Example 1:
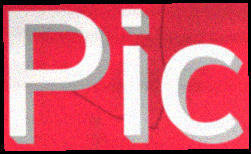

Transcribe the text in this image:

Pic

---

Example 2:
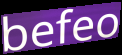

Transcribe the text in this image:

befeo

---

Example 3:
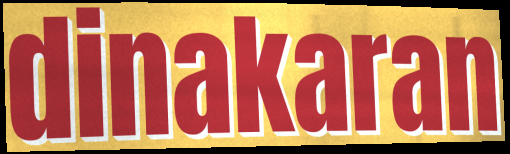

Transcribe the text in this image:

dinakaran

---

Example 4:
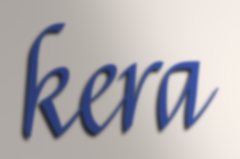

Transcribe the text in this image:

kera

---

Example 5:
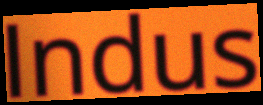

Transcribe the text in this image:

Indus